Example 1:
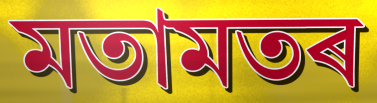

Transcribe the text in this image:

মতামতৰ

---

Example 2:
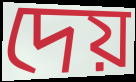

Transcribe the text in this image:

দেয়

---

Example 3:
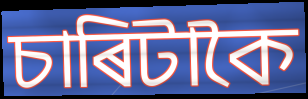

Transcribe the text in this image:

চাৰিটাকৈ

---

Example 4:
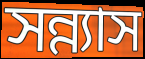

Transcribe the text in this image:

সন্ন্যাস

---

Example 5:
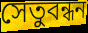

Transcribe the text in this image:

সেতুবন্ধন